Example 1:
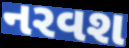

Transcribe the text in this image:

નરવશ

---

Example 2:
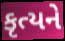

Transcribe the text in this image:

કૃત્યને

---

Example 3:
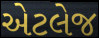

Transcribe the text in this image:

એટલેજ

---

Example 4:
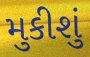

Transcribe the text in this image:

મુકીશું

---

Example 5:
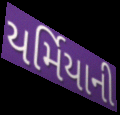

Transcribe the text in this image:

યર્મિયાની